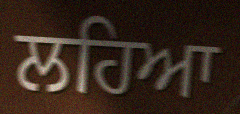
ਲਹਿਆ